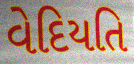
વેદિયતિ